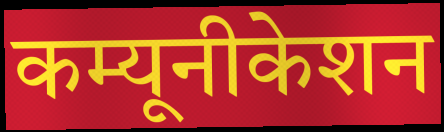
कम्यूनीकेशन